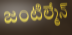
జంటిల్మేన్